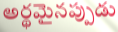
అర్థమైనప్పుడు